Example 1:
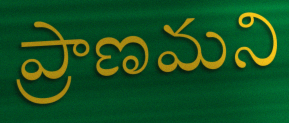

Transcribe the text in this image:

ప్రాణమని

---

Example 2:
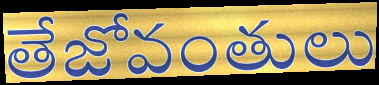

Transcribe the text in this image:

తేజోవంతులు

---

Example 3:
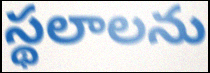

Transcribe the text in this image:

స్థలాలను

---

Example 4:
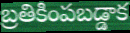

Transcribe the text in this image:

బ్రతికింపబడ్డాక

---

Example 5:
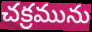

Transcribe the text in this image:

చక్రమును